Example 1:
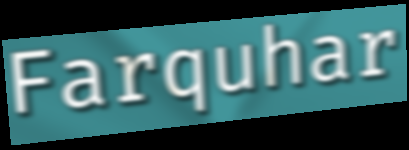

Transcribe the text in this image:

Farquhar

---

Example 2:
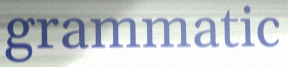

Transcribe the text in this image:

grammatic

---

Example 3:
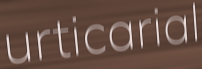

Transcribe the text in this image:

urticarial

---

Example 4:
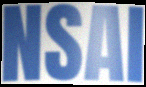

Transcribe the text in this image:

NSAI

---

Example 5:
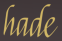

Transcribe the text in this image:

hade